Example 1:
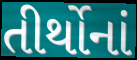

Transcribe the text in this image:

તીર્થોનાં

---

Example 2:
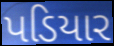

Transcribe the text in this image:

પડિયાર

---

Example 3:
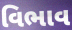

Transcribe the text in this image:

વિભાવ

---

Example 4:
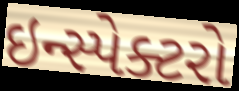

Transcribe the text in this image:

ઇન્સ્પેક્ટરો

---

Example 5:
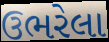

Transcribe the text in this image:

ઉભરેલા